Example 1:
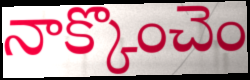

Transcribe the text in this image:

నాక్కొంచెం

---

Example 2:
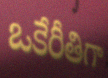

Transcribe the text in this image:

ఒకేరీతిగా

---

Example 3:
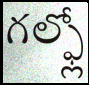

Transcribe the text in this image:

గల్ఫ్లో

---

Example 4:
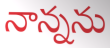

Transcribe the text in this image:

నాన్నను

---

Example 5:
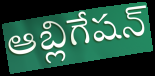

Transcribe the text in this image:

ఆబ్లిగేషన్